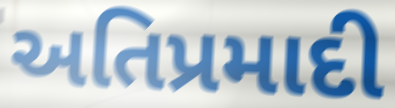
અતિપ્રમાદી